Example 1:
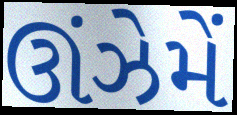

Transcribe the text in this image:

ઊંઝેમેં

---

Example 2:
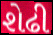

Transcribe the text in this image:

શેઢી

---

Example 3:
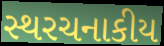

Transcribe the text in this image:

સ્થરચનાકીય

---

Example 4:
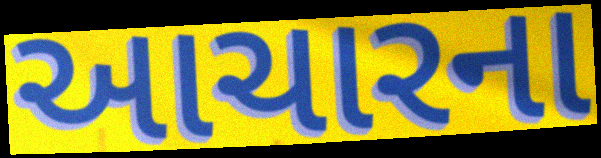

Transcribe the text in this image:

આચારના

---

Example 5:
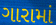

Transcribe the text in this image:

ગારામાં